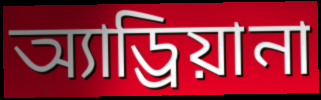
অ্যাড্রিয়ানা